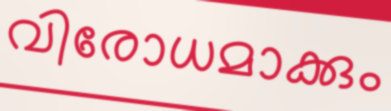
വിരോധമാക്കും